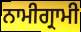
ਨਾਮੀਗ੍ਰਾਮੀ